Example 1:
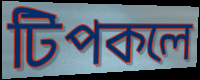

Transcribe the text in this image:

টিপকলে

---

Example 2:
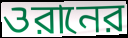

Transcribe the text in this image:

ওরানের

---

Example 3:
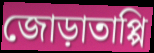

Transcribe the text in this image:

জোড়াতাপ্পি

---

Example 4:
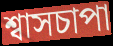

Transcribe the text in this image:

শ্বাসচাপা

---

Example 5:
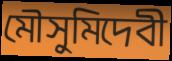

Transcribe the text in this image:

মৌসুমিদেবী